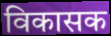
विकासक